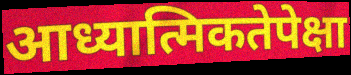
आध्यात्मिकतेपेक्षा